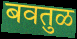
बवतुळ